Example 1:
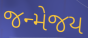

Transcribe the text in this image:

જન્મેજય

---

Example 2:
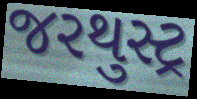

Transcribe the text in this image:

જરથુસ્ટ્ર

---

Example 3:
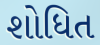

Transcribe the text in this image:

શોધિત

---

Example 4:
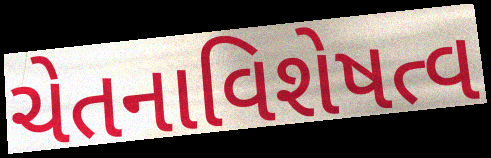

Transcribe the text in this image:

ચેતનાવિશેષત્વ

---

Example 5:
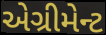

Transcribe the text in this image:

એગ્રીમેન્ટ